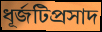
ধূর্জটিপ্রসাদ